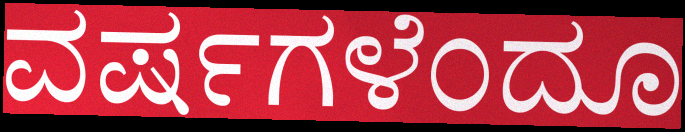
ವರ್ಷಗಳೆಂದೂ